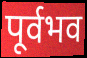
पूर्वभव